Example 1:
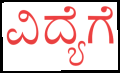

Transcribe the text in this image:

ವಿದ್ಯೆಗೆ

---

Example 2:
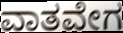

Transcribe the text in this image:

ವಾತವೇಗ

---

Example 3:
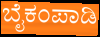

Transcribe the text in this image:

ಬೈಕಂಪಾಡಿ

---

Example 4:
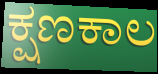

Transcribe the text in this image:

ಕ್ಷಣಕಾಲ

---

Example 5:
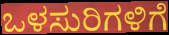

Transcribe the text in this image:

ಒಳಸುರಿಗಳಿಗೆ